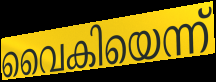
വൈകിയെന്ന്